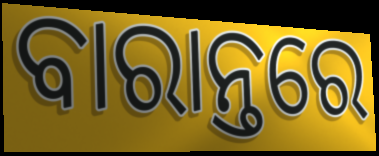
ବାରାନ୍ତରେ